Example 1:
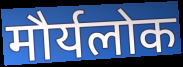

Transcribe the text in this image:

मौर्यलोक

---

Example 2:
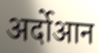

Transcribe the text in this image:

अर्दोआन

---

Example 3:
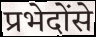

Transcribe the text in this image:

प्रभेदोंसे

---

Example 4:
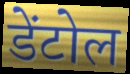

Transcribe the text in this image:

डेंटोल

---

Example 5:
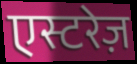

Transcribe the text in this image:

एस्टरेज़